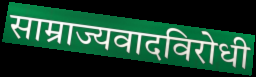
साम्राज्यवादविरोधी